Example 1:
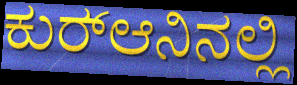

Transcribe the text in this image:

ಕುರ್‍ಆನಿನಲ್ಲಿ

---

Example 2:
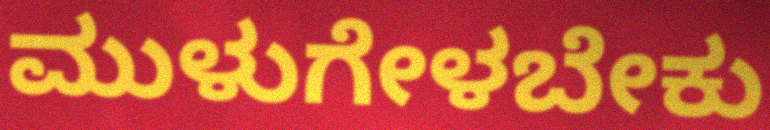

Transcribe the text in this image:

ಮುಳುಗೇಳಬೇಕು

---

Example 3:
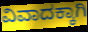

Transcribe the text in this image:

ವಿವಾದಕ್ಕಾಗಿ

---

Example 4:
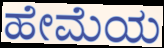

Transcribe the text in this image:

ಹೇಮೆಯ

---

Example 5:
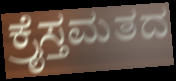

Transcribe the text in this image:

ಕ್ರೈಸ್ತಮತದ